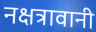
नक्षत्रावानी